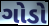
ગોડો